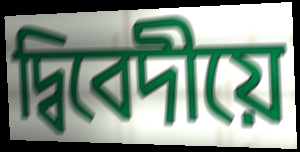
দ্বিবেদীয়ে